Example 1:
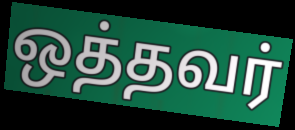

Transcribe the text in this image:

ஒத்தவர்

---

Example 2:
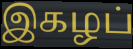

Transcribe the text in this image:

இகழப்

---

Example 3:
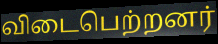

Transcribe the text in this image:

விடைபெற்றனர்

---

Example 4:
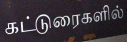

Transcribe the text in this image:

கட்டுரைகளில்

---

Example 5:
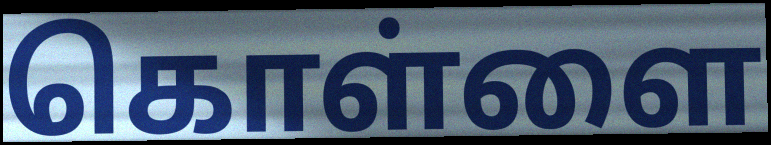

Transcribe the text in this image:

கொள்ளை